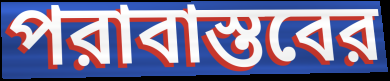
পরাবাস্তবের